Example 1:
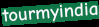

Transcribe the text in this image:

tourmyindia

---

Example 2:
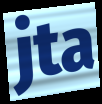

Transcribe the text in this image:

jta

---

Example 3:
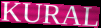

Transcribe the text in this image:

KURAL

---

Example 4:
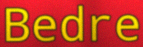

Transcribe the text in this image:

Bedre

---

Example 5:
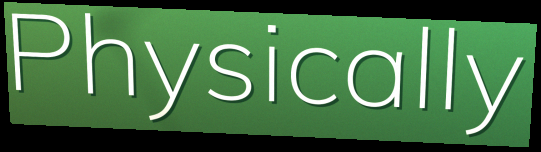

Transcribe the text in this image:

Physically